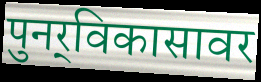
पुनर्विकासावर